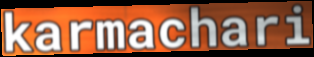
karmachari